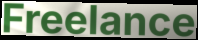
Freelance